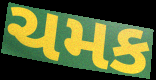
ચમક